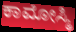
ಕಾಮೋಸ್ಮಿ